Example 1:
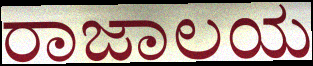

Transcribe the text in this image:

ರಾಜಾಲಯ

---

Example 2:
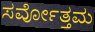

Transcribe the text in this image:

ಸರ್ವೋತ್ತಮ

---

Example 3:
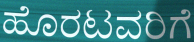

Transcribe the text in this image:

ಹೊರಟವರಿಗೆ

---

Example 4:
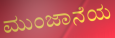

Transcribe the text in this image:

ಮುಂಜಾನೆಯ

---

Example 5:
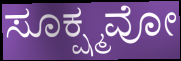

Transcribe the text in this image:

ಸೂಕ್ಷ್ಮವೋ